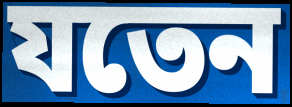
যতেন